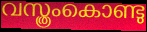
വസ്ത്രംകൊണ്ടു